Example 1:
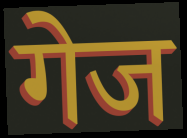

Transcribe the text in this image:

गेज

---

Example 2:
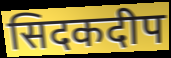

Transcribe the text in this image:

सिदकदीप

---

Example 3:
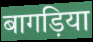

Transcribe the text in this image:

बागड़िया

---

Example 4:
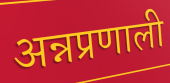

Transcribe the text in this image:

अन्नप्रणाली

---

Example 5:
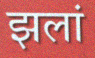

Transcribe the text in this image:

झलां